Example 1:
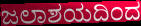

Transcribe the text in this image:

ಜಲಾಶಯದಿಂದ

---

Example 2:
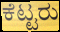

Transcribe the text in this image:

ಕೆಟ್ಟರು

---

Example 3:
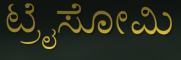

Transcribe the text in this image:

ಟ್ರೈಸೋಮಿ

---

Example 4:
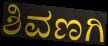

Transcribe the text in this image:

ಶಿವಣಗಿ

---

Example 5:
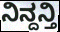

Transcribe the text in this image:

ನಿನ್ದನ್ತಿ